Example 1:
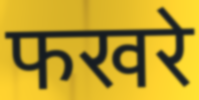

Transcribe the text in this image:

फखरे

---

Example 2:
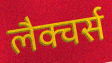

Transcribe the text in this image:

लैक्चर्स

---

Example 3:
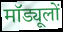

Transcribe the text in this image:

मॉड्यूलों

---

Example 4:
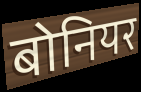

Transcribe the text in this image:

बोनियर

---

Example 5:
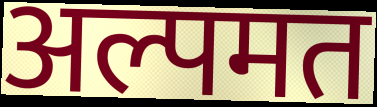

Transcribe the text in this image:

अल्पमत